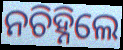
ନଚିହ୍ନିଲେ